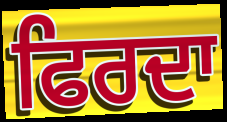
ਫਿਰਦਾ